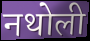
नथोली